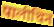
पालीथिन